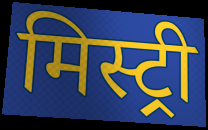
मिस्ट्री